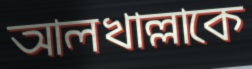
আলখাল্লাকে